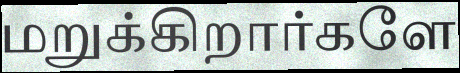
மறுக்கிறார்களே